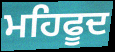
ਮਹਿਫੂਦ